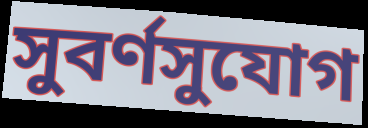
সুবর্ণসুযোগ